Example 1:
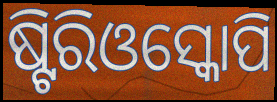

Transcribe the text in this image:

ଷ୍ଟିରିଓସ୍କୋପି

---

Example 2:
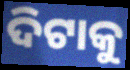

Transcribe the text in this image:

ଦିଟାକୁ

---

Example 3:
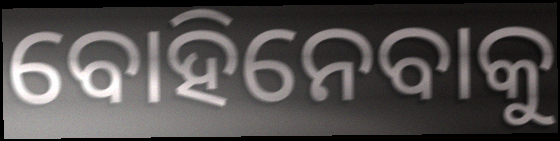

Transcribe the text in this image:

ବୋହିନେବାକୁ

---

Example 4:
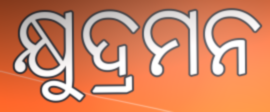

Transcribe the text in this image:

କ୍ଷୁଦ୍ରମନ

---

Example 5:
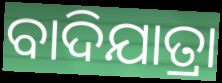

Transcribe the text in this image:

ବାଦିଯାତ୍ରା